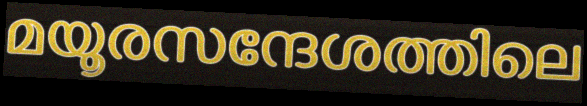
മയൂരസന്ദേശത്തിലെ